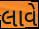
લાવે